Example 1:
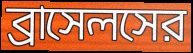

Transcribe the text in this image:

ব্রাসেলসের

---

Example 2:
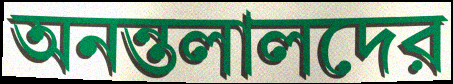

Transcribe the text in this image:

অনন্তলালদের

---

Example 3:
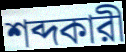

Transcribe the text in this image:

শব্দকারী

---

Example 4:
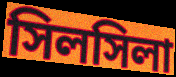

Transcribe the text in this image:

সিলসিলা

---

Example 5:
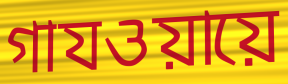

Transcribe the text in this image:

গাযওয়ায়ে